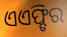
ଏଏଫ୍ଡିର